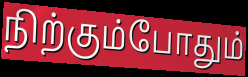
நிற்கும்போதும்